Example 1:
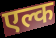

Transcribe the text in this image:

एल्क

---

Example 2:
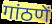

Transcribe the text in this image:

गांठणें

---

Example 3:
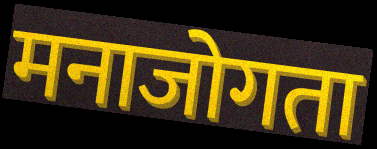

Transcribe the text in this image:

मनाजोगता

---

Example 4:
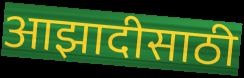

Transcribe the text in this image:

आझादीसाठी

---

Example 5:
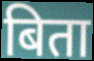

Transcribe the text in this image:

बिता